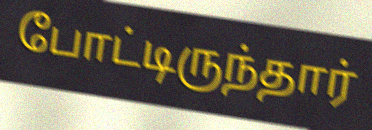
போட்டிருந்தார்